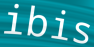
ibis